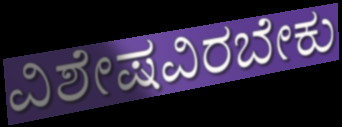
ವಿಶೇಷವಿರಬೇಕು